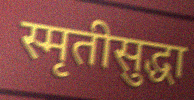
स्मृतीसुद्धा